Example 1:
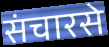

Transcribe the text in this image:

संचारसे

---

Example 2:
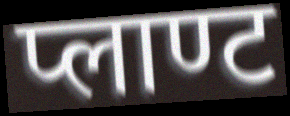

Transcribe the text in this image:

प्लाण्ट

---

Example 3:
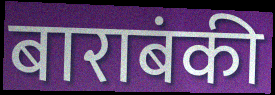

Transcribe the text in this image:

बाराबंकी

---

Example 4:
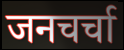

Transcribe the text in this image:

जनचर्चा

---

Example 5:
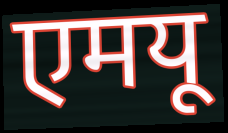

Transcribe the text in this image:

एमयू